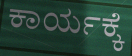
ಕಾರ್ಯಕ್ಕೆ